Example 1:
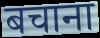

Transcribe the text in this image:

बचाना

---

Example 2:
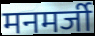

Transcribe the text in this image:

मनमर्जी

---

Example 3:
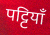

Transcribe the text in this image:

पट्टियाँ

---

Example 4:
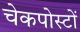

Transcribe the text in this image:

चेकपोस्टों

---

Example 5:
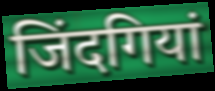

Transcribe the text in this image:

जिंदगियां